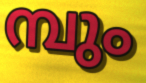
മ്പും